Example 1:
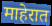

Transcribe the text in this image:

माहेरात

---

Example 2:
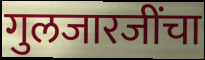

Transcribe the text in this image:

गुलजारजींचा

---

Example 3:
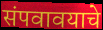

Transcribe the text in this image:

संपवावयाचे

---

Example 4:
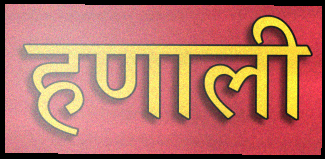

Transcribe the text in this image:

हणाली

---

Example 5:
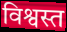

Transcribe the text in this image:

विश्वस्त